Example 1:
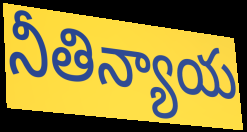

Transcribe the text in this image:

నీతిన్యాయ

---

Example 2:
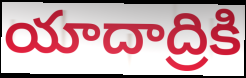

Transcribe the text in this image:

యాదాద్రికి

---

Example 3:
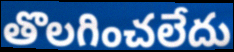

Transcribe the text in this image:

తొలగించలేదు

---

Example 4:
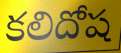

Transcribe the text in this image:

కలిదోష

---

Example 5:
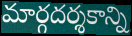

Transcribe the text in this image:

మార్గదర్శకాన్ని